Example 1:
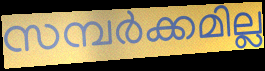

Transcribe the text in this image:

സമ്പർക്കമില്ല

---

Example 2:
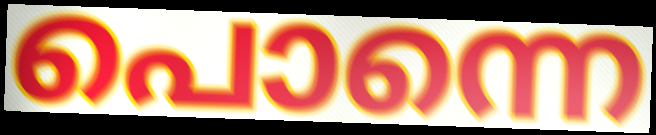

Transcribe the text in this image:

പൊന്നെ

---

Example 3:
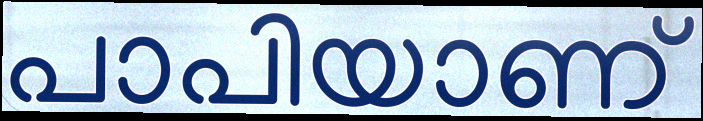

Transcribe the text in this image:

പാപിയാണ്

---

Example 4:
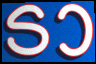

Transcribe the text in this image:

ടാ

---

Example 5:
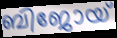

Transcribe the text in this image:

ബിജോയ്